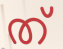
ത്